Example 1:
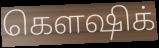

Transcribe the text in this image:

கௌஷிக்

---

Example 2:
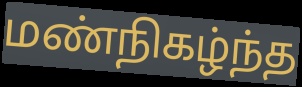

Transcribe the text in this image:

மண்நிகழ்ந்த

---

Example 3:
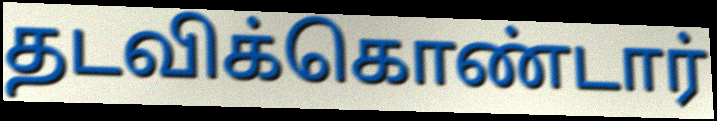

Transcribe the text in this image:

தடவிக்கொண்டார்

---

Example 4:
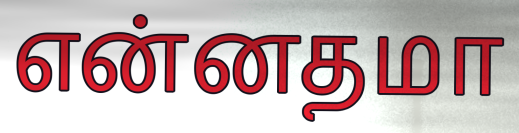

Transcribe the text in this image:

என்னதமா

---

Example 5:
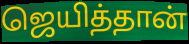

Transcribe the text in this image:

ஜெயித்தான்